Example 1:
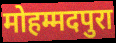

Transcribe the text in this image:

मोहम्मदपुरा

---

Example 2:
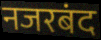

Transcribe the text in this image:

नजरबंद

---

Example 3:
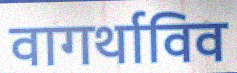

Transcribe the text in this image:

वागर्थाविव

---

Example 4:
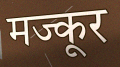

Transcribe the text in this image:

मज्कूर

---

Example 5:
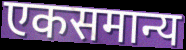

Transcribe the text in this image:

एकसमान्य